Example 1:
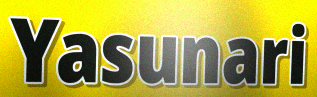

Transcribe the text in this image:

Yasunari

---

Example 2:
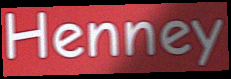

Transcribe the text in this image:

Henney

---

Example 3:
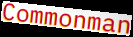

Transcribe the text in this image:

Commonman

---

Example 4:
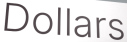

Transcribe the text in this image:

Dollars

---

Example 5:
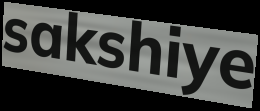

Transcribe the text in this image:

sakshiye